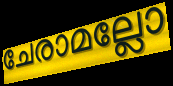
ചേരാമല്ലോ